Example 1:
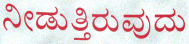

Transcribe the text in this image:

ನೀಡುತ್ತಿರುವುದು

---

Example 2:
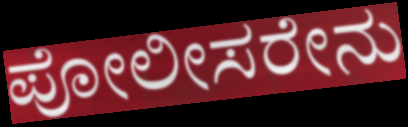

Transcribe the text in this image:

ಪೋಲೀಸರೇನು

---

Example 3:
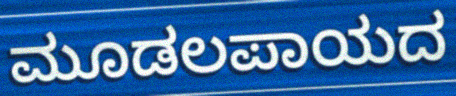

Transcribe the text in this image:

ಮೂಡಲಪಾಯದ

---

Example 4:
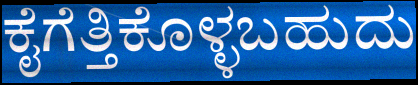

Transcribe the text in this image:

ಕೈಗೆತ್ತಿಕೊಳ್ಳಬಹುದು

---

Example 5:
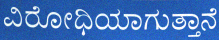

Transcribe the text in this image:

ವಿರೋಧಿಯಾಗುತ್ತಾನೆ